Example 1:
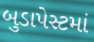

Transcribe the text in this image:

બુડાપેસ્ટમાં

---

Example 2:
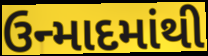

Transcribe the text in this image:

ઉન્માદમાંથી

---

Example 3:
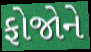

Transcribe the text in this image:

ફોજોને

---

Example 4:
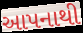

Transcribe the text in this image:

આપનાથી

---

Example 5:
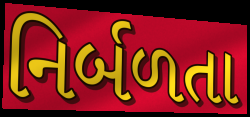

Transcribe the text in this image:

નિર્બળતા